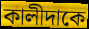
কালীদাকে